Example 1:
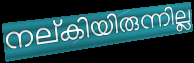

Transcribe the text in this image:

നല്കിയിരുന്നില്ല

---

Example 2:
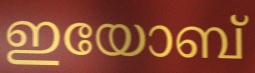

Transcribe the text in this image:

ഇയോബ്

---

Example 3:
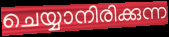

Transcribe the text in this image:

ചെയ്യാനിരിക്കുന്ന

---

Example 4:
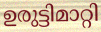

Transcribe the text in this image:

ഉരുട്ടിമാറ്റി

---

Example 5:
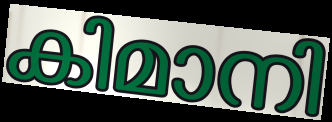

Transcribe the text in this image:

കിമാനി